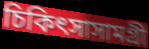
চিকিৎসাসামগ্রী